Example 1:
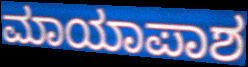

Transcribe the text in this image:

ಮಾಯಾಪಾಶ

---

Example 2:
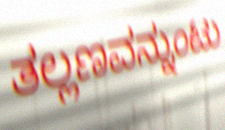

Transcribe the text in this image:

ತಲ್ಲಣವನ್ನುಂಟು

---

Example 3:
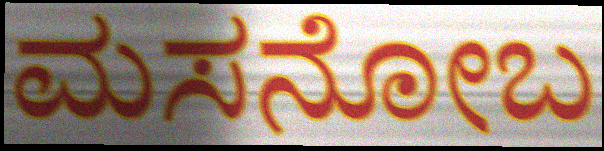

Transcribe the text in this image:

ಮಸನೋಬ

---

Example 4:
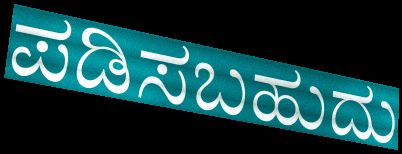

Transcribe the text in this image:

ಪಡಿಸಬಹುದು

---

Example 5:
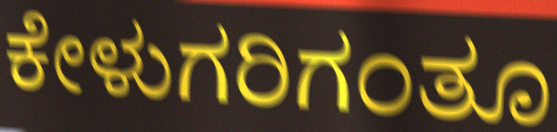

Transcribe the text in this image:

ಕೇಳುಗರಿಗಂತೂ